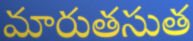
మారుతసుత